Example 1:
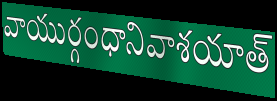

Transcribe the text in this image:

వాయుర్గంధానివాశయాత్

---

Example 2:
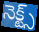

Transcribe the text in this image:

నెక్ట్స్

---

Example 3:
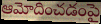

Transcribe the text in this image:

ఆమోదించడంపై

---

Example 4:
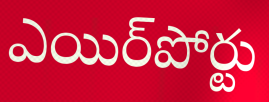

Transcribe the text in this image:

ఎయిర్‌పోర్టు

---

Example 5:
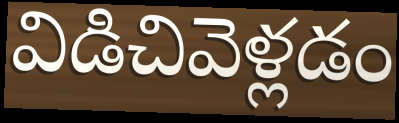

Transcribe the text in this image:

విడిచివెళ్లడం